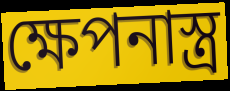
ক্ষেপনাস্ত্র